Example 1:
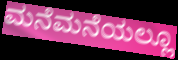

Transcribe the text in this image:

ಮನೆಮನೆಯಲ್ಲೂ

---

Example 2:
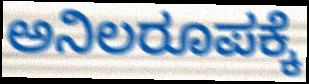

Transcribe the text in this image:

ಅನಿಲರೂಪಕ್ಕೆ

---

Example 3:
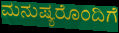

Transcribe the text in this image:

ಮನುಷ್ಯರೊಂದಿಗೆ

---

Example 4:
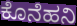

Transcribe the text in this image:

ಕೊನೆಹನಿ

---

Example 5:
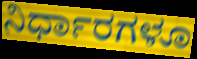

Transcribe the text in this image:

ನಿರ್ಧಾರಗಳೂ